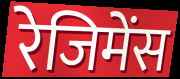
रेजिमेंस